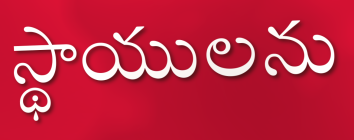
స్థాయులను